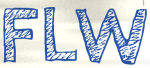
FLW